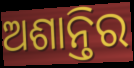
ଅଶାନ୍ତିର